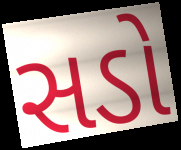
સડો